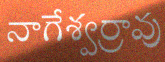
నాగేశ్వర్రావు